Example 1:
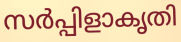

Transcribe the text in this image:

സർപ്പിളാകൃതി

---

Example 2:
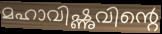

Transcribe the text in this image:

മഹാവിഷ്ണുവിന്റെ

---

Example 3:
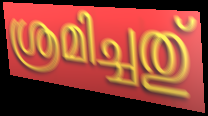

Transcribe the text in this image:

ശ്രമിച്ചതു്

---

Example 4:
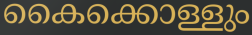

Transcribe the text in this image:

കൈക്കൊള്ളും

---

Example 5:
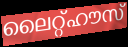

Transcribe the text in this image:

ലൈറ്റ്ഹൗസ്